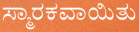
ಸ್ಮಾರಕವಾಯಿತು